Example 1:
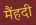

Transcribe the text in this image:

मैंहदी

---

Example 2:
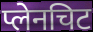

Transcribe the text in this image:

प्लेनचिट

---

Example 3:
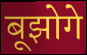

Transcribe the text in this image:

बूझोगे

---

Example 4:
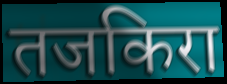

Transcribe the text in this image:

तजकिरा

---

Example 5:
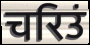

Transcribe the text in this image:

चरिउं